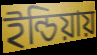
ইন্ডিয়ায়